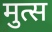
मुत्स